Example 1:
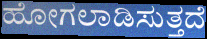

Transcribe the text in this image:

ಹೋಗಲಾಡಿಸುತ್ತದೆ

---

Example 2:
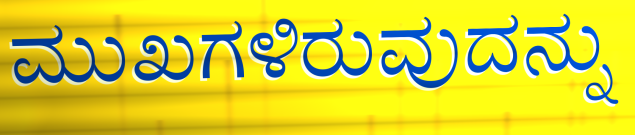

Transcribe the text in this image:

ಮುಖಗಳಿರುವುದನ್ನು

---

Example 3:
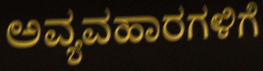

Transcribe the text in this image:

ಅವ್ಯವಹಾರಗಳಿಗೆ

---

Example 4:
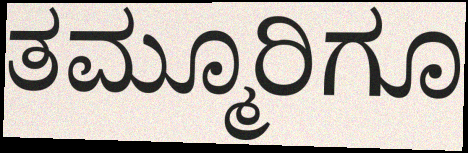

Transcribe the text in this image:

ತಮ್ಮೂರಿಗೂ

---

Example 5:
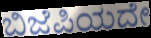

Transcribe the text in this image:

ಬಿಜೆಪಿಯದೇ